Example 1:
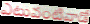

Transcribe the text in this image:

ఎటువంటివాడో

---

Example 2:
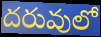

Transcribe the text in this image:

దరువులో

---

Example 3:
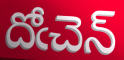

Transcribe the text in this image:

దోఁచెన్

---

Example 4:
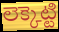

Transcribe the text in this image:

లెక్కెట్టి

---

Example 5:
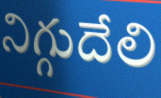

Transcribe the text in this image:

నిగ్గుదేలి